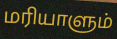
மரியாளும்